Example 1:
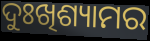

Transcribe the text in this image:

ଦୁଃଖିଶ୍ୟାମର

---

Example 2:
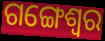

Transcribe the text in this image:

ଗଙ୍ଗେଶ୍ଵର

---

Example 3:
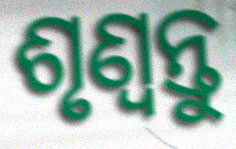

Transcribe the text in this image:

ଶୃଣ୍ଵନ୍ତୁ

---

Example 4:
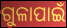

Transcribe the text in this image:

ଗୁଳାପାଇଁ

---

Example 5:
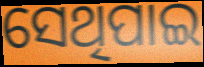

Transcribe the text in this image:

ସେଥିପାଇ